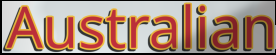
Australian